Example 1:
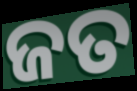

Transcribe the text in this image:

ଜତ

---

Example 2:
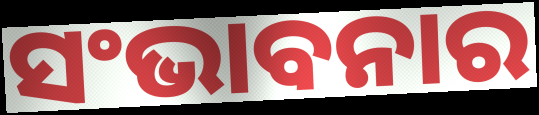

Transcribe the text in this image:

ସଂଭାବନାର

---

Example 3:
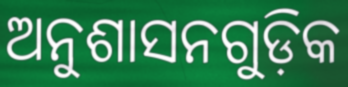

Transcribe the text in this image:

ଅନୁଶାସନଗୁଡ଼ିକ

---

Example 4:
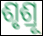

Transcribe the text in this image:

ଶୃଶ୍ରୂ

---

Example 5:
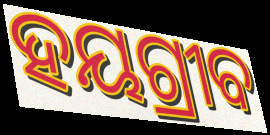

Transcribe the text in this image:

ହୟଗ୍ରୀବ